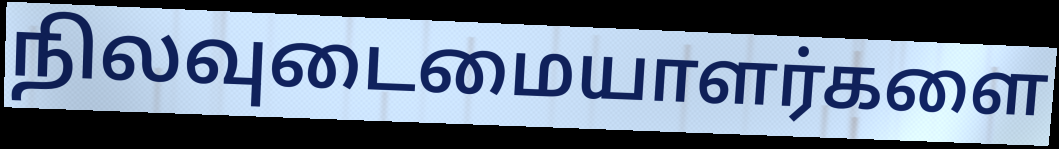
நிலவுடைமையாளர்களை